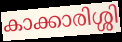
കാക്കാരിശ്ശി